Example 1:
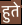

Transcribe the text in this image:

हुते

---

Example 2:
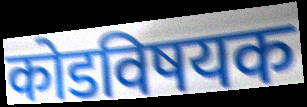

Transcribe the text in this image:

कोडविषयक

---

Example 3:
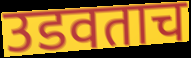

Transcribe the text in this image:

उडवताच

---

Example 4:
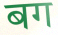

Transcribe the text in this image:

बग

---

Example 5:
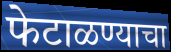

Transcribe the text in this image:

फेटाळण्याचा